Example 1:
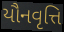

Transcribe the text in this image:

યૌનવૃત્તિ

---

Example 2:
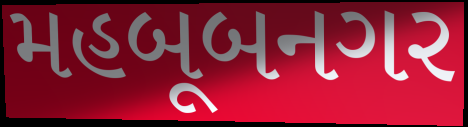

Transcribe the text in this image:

મહબૂબનગર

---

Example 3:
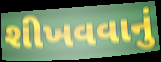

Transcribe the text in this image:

શીખવવાનું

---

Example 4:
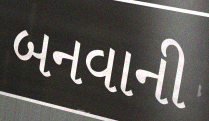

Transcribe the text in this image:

બનવાની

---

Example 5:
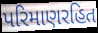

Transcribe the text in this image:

પરિમાણરહિત